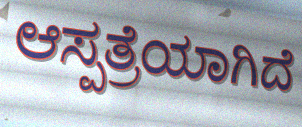
ಆಸ್ಪತ್ರೆಯಾಗಿದೆ